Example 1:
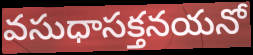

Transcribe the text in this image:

వసుధాసక్తనయనో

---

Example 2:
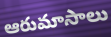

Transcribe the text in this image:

ఆరుమాసాలు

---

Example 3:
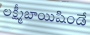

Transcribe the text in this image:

లక్ష్మీబాయిషిండే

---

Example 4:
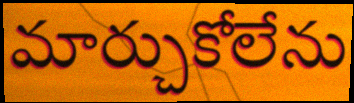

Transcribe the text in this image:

మార్చుకోలేను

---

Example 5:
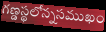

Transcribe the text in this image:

గణ్డస్థలోన్నసముఖం